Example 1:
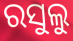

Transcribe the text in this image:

ରସୁଲୁ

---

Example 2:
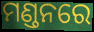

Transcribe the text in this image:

ମଣ୍ଡନରେ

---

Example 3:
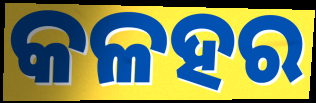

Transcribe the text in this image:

କଳହର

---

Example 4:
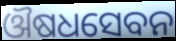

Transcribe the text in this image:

ଔଷଧସେବନ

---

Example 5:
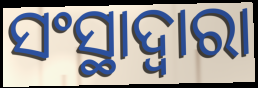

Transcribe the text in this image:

ସଂସ୍ଥାଦ୍ୱାରା